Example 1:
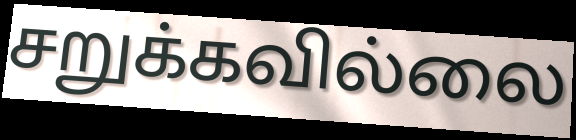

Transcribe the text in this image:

சறுக்கவில்லை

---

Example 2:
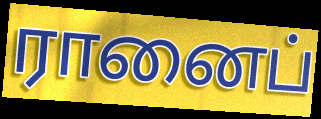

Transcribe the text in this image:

ரானைப்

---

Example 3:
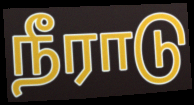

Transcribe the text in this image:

நீராடு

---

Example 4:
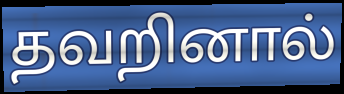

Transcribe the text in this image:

தவறினால்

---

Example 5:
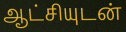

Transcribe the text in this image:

ஆட்சியுடன்